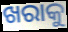
ଖରାକୁ